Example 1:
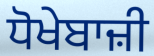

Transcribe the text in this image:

ਧੋਖੇਬਾਜ਼ੀ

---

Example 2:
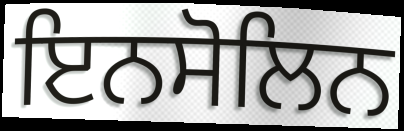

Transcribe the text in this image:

ਇਨਸੋਲਿਨ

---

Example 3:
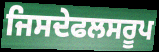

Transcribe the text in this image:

ਜਿਸਦੇਫਲਸਰੂਪ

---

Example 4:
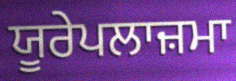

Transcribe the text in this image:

ਯੂਰੇਪਲਾਜ਼ਮਾ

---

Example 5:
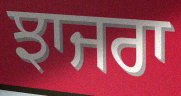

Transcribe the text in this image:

ਝਾਜਰਾ